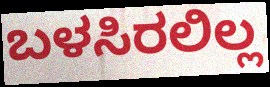
ಬಳಸಿರಲಿಲ್ಲ